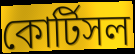
কোর্টিসল